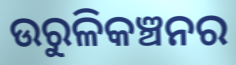
ଉରୁଳିକଞ୍ଚନର